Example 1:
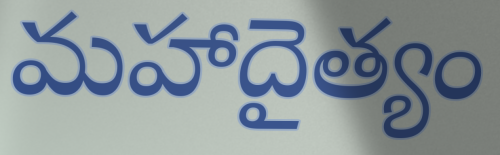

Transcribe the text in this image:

మహాదైత్యం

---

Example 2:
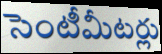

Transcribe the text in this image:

సెంటీమీటర్లు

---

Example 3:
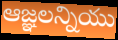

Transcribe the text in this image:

ఆజ్ఞలన్నియు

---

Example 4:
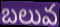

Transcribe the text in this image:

బలువ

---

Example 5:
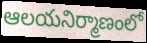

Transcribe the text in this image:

ఆలయనిర్మాణంలో